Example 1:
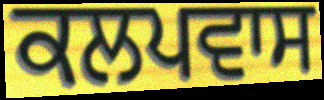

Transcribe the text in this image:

ਕਲਪਵਾਸ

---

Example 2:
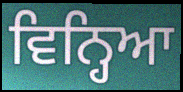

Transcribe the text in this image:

ਵਿਨ੍ਹਿਆ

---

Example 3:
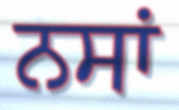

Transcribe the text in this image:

ਨਸਾਂ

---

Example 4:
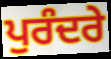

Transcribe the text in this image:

ਪੁਰੰਦਰੇ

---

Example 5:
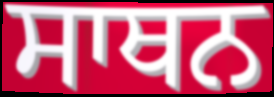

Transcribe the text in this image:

ਸਾਥਨ